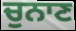
ਚੁਨਾਣ